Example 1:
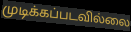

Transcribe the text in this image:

முடிக்கப்படவில்லை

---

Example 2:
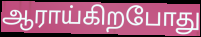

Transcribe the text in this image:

ஆராய்கிறபோது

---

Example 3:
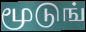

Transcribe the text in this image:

மூடுங்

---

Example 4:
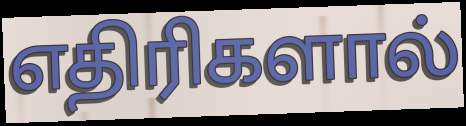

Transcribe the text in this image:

எதிரிகளால்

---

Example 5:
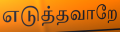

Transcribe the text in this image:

எடுத்தவாறே